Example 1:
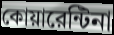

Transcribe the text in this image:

কোয়ারেন্টিনা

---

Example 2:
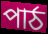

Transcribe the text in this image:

পাঠ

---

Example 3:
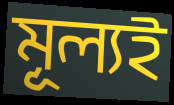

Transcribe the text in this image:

মূল্যই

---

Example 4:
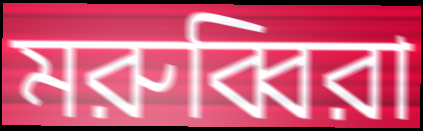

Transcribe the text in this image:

মরুব্বিরা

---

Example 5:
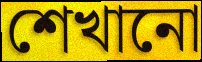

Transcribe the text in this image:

শেখানো